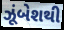
ઝૂંબેશથી